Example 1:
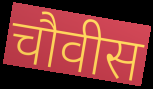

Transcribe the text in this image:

चौवीस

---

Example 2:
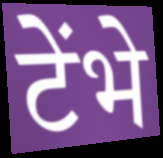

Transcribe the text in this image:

टेंभे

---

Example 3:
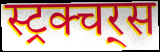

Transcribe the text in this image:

स्ट्रक्चर्स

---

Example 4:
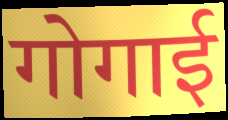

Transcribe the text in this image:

गोगाई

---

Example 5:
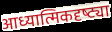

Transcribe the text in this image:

आध्यात्मिकदृष्ट्या